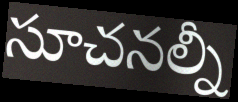
సూచనల్నీ